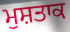
ਮੁਸ਼ਤਾਕ